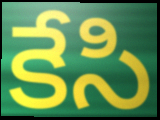
కేసి